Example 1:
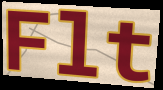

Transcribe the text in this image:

Flt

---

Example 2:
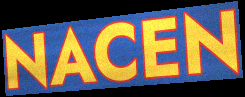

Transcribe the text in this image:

NACEN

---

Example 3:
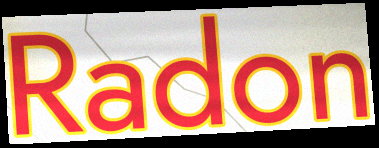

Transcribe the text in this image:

Radon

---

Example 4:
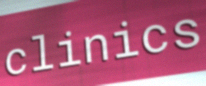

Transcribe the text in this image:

clinics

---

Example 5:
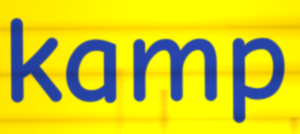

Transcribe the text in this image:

kamp